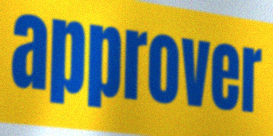
approver